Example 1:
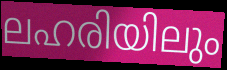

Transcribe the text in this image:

ലഹരിയിലും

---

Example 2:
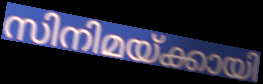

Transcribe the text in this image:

സിനിമയ്ക്കായി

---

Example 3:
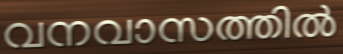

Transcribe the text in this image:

വനവാസത്തിൽ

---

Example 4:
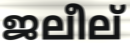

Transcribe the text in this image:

ജലീല്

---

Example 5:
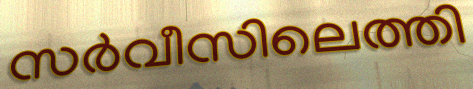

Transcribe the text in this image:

സർവീസിലെത്തി